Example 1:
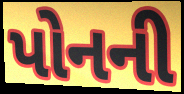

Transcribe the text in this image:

પોનની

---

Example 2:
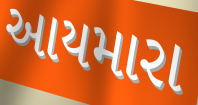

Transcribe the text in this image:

આયમારા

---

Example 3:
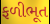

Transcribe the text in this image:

ફળીભૂત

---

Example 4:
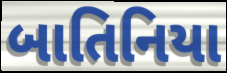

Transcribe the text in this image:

બાતિનિયા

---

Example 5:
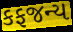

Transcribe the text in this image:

કફજન્ય